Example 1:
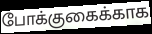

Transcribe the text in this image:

போக்குகைக்காக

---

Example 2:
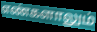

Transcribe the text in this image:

எண்களாலும்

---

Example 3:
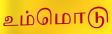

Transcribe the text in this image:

உம்மொடு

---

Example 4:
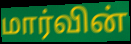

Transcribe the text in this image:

மார்வின்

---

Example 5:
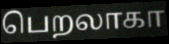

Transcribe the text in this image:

பெறலாகா